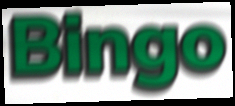
Bingo